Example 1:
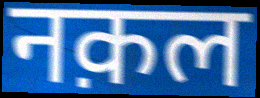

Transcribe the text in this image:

नक़ल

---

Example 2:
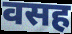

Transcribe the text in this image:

वसह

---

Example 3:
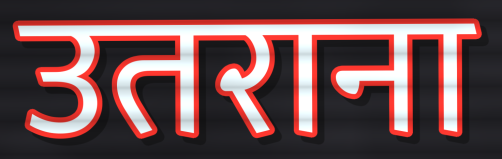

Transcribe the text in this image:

उतराना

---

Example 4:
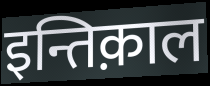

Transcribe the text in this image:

इन्तिक़ाल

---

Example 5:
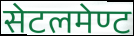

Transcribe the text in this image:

सेटलमेण्ट